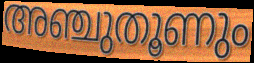
അഞ്ചുതൂണും